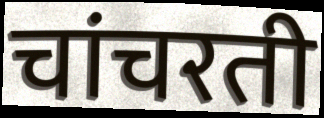
चांचरती